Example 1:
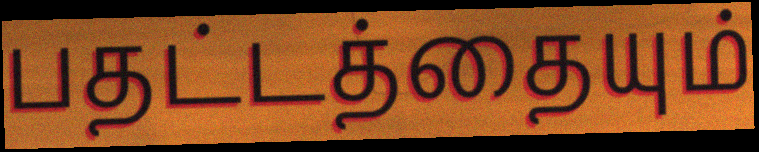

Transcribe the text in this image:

பதட்டத்தையும்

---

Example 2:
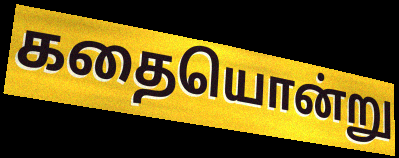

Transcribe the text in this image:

கதையொன்று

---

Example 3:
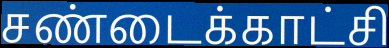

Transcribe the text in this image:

சண்டைக்காட்சி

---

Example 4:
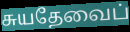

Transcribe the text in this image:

சுயதேவைப்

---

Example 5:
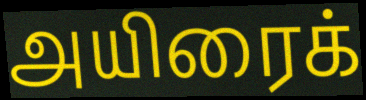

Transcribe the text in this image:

அயிரைக்